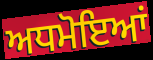
ਅਧਮੋਇਆਂ